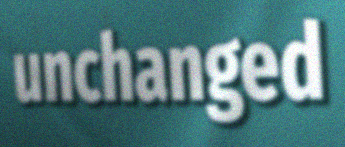
unchanged